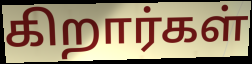
கிறார்கள்